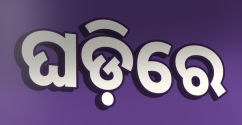
ଘଡ଼ିରେ